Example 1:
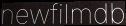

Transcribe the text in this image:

newfilmdb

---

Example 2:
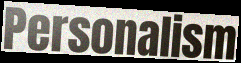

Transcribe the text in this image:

Personalism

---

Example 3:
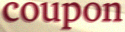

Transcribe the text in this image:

coupon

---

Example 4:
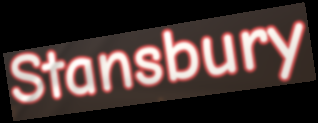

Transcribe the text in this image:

Stansbury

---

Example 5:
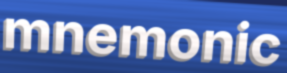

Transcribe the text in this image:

mnemonic